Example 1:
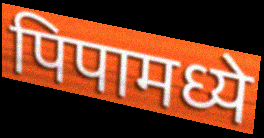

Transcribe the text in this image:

पिपामध्ये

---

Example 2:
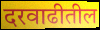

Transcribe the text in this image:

दरवाढीतील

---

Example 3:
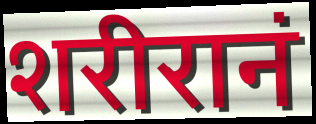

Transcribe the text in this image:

शरीरानं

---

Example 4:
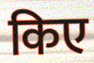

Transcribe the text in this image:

किए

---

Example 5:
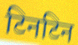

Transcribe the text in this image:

टिनटिन